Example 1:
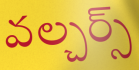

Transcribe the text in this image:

వల్చర్స్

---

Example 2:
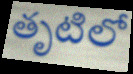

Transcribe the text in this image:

తృటిలో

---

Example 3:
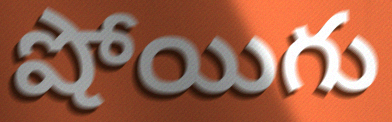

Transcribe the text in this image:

షోయిగు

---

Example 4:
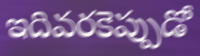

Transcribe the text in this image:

ఇదివరకెప్పుడో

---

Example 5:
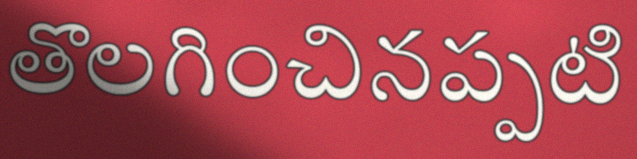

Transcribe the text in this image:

తొలగించినప్పటి